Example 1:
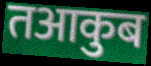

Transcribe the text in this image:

तआकुब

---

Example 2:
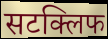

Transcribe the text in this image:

सटक्लिफ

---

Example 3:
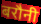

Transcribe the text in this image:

बरौनी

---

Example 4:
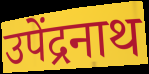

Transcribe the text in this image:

उपेंद्रनाथ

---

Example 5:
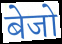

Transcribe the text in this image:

बेजो